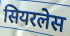
सियरलेस